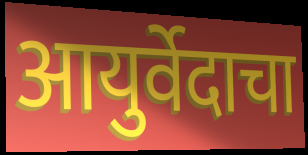
आयुर्वेदाचा